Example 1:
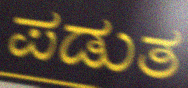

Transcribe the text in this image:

ಪಡುತ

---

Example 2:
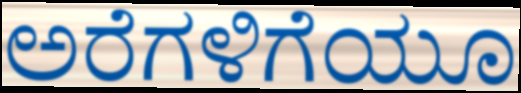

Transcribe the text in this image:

ಅರೆಗಳಿಗೆಯೂ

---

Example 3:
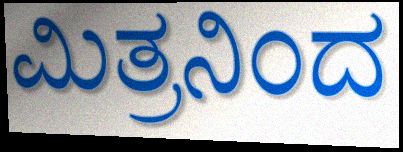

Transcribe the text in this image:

ಮಿತ್ರನಿಂದ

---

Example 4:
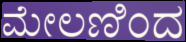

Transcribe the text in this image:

ಮೇಲಣಿಂದ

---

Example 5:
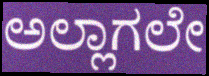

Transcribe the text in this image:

ಅಲ್ಲಾಗಲೇ